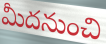
మీదనుంచి